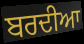
ਬਰਦੀਆ